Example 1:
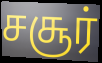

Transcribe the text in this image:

சசூர்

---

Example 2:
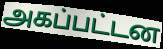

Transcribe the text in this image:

அகப்பட்டன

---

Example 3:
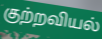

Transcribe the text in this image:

குற்றவியல்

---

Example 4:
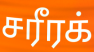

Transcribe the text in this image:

சரீரக்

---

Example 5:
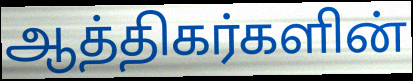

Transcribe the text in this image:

ஆத்திகர்களின்